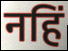
नहिं